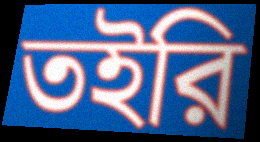
তইরি